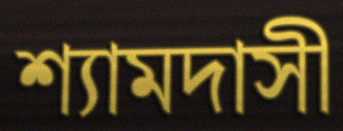
শ্যামদাসী